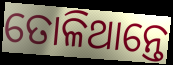
ତୋଳିଥାନ୍ତେ